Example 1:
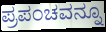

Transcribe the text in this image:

ಪ್ರಪಂಚವನ್ನೂ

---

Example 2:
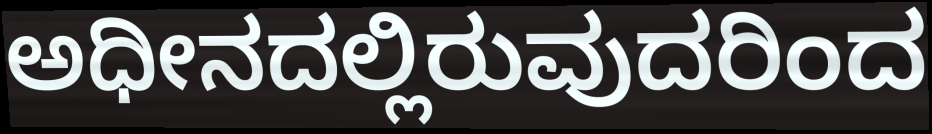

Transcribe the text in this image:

ಅಧೀನದಲ್ಲಿರುವುದರಿಂದ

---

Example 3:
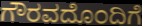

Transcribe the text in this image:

ಗೌರವದೊಂದಿಗೆ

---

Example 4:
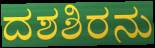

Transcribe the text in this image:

ದಶಶಿರನು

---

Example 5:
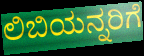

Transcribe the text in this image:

ಲಿಬಿಯನ್ನರಿಗೆ